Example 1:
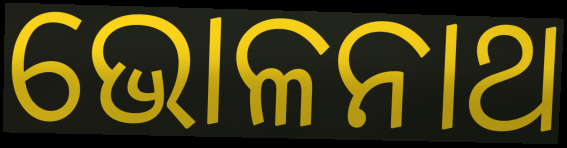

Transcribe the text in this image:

ଭୋଳନାଥ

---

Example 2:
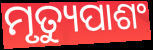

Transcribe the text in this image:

ମୃତ୍ୟୁପାଶଂ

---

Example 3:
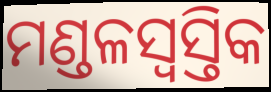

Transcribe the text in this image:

ମଣ୍ଡଳସ୍ୱସ୍ତିକ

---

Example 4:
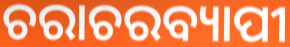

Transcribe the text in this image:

ଚରାଚରବ୍ୟାପୀ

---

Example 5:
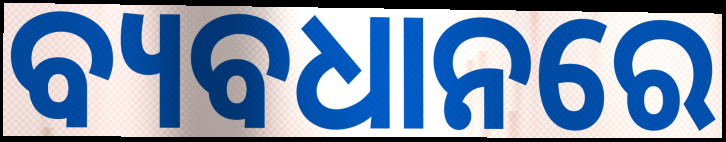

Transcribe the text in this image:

ବ୍ୟବଧାନରେ